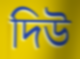
দিউ